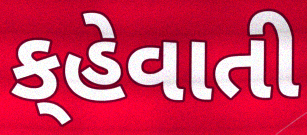
ક્‌હેવાતી